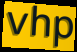
vhp